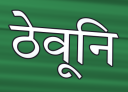
ठेवूनि